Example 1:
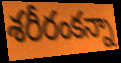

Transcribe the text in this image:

శరీరంకన్నా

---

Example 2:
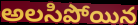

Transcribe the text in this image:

అలసిపోయిన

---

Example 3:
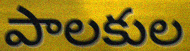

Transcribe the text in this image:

పాలకుల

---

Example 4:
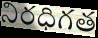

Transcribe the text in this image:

నిరధిగత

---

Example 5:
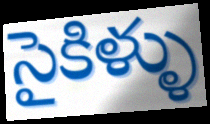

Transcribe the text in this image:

సైకిళ్ళు